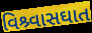
વિશ્ર્વાસઘાત